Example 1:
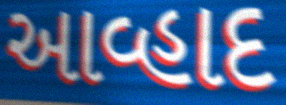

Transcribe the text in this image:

આવ્હાદ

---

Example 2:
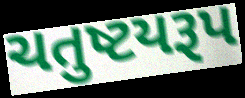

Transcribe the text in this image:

ચતુષ્ટયરૂપ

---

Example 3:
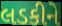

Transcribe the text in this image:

લડકીને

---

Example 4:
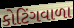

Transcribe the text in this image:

કોટિંગવાળા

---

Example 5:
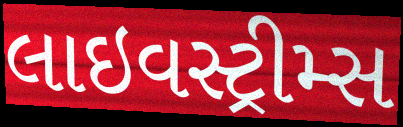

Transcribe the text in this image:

લાઇવસ્ટ્રીમ્સ